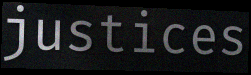
justices